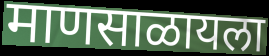
माणसाळायला